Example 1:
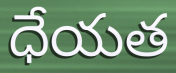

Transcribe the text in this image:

ధేయత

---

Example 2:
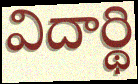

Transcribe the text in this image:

విదార్థి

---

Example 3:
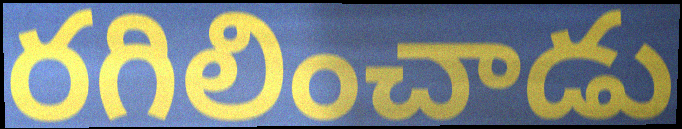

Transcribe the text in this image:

రగిలించాడు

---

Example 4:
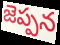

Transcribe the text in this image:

జెప్పన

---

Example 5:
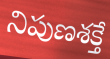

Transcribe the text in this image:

నిపుణశక్తే